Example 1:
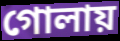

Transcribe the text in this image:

গোলায়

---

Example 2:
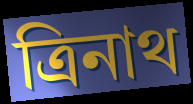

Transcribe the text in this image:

ত্রিনাথ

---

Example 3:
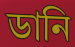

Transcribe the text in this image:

ডানি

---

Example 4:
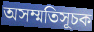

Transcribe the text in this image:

অসম্মতিসূচক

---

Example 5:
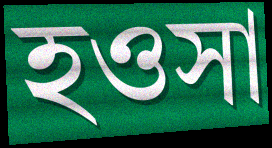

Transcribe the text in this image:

হওসা